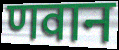
णवान